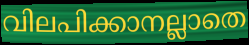
വിലപിക്കാനല്ലാതെ